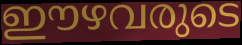
ഈഴവരുടെ